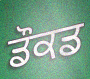
ਡੌਕਡ